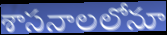
శాసనాలలోనూ